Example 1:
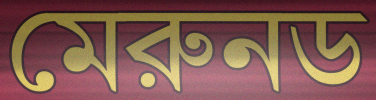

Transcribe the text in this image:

মেরুনড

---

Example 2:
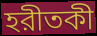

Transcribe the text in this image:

হরীতকী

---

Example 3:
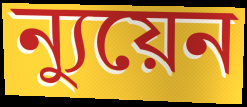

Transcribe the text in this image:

ন্যুয়েন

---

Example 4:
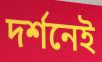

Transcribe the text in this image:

দর্শনেই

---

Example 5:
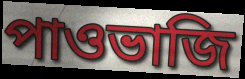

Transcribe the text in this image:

পাওভাজি